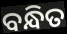
ବନ୍ଧିତ